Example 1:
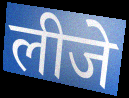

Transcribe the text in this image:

लीजे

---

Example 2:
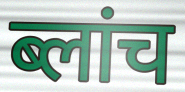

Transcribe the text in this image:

ब्लांच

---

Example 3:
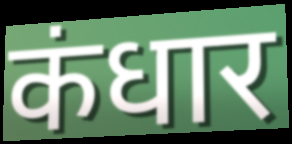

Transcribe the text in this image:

कंधार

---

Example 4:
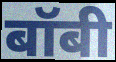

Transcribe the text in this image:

बॉबी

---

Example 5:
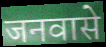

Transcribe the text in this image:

जनवासे